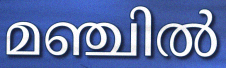
മഞ്ചിൽ